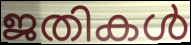
ജതികൾ